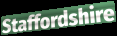
Staffordshire